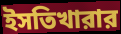
ইসতিখারার